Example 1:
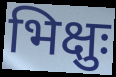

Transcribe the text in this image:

भिक्षुः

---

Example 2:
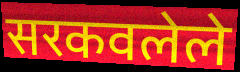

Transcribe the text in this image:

सरकवलेले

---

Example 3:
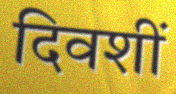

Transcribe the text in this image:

दिवशीं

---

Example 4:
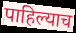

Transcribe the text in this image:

पाहिल्याच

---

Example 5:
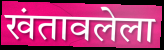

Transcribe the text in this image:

खंतावलेला